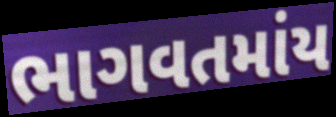
ભાગવતમાંય